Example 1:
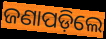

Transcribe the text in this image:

ଜଣାପଡ଼ିଲେ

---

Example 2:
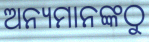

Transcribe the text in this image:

ଅନ୍ୟମାନଙ୍କଠୁ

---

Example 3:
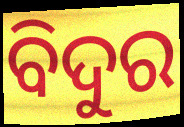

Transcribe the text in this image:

ବିଦୁର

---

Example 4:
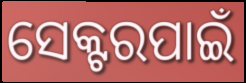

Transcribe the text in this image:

ସେକ୍ଟରପାଇଁ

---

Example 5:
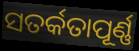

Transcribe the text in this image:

ସତର୍କତାପୂର୍ଣ୍ଣ